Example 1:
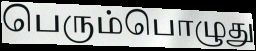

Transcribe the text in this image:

பெரும்பொழுது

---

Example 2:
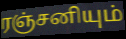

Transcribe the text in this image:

ரஞ்சனியும்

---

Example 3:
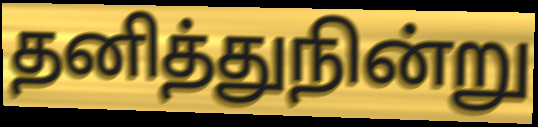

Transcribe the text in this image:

தனித்துநின்று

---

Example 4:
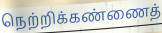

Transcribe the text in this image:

நெற்றிக்கண்ணைத்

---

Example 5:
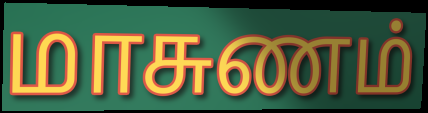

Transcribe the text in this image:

மாசுணம்